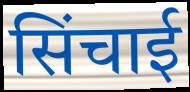
सिंचाई